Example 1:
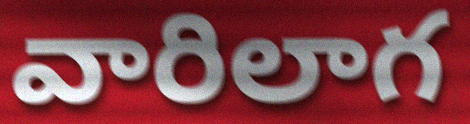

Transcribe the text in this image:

వారిలాగ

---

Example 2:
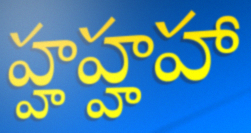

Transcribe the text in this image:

హ్హహ్హహా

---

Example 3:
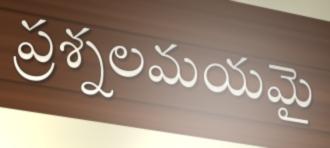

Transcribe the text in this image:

ప్రశ్నలమయమై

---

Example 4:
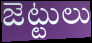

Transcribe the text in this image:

జెట్టులు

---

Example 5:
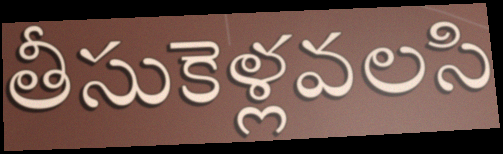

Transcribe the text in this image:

తీసుకెళ్లవలసి